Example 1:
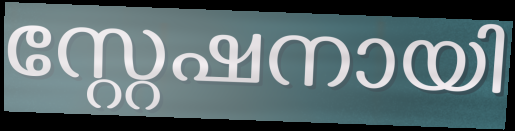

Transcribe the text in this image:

സ്റ്റേഷനായി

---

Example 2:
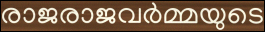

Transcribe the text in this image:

രാജരാജവർമ്മയുടെ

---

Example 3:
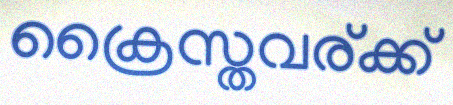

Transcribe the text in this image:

ക്രൈസ്തവര്ക്ക്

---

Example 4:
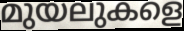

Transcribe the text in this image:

മുയലുകളെ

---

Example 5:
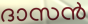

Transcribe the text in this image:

ദാസൻ